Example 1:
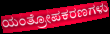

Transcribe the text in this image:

ಯಂತ್ರೋಪಕರಣಗಳು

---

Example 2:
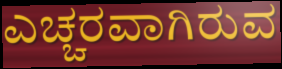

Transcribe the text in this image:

ಎಚ್ಚರವಾಗಿರುವ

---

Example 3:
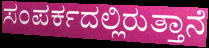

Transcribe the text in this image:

ಸಂಪರ್ಕದಲ್ಲಿರುತ್ತಾನೆ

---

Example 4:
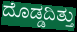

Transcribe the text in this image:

ದೊಡ್ಡದಿತ್ತು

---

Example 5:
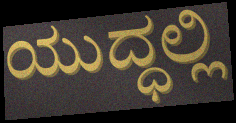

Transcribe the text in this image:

ಯುದ್ಧಲ್ಲಿ